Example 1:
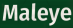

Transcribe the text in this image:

Maleye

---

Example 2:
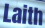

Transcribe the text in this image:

Laith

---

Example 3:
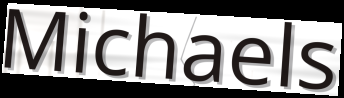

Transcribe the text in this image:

Michaels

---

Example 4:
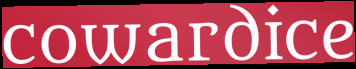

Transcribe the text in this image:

cowardice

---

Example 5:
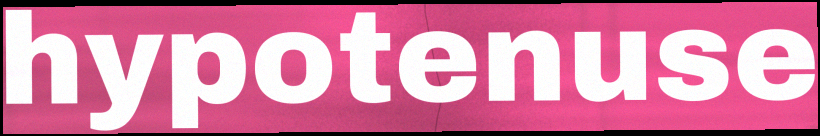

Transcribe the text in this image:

hypotenuse